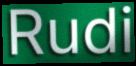
Rudi